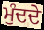
ਮੁੰਦਦੇ